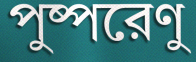
পুষ্পরেণু